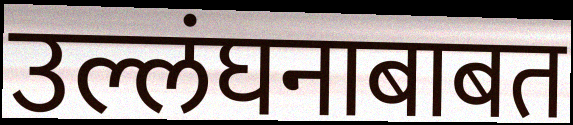
उल्लंघनाबाबत